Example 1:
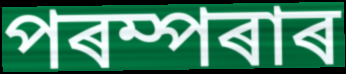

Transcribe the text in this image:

পৰম্পৰাৰ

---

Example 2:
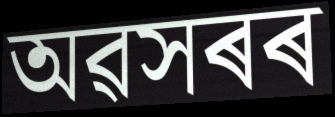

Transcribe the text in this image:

অৱসৰৰ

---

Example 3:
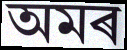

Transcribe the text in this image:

অমৰ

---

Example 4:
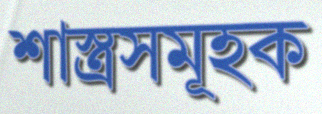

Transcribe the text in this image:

শাস্ত্ৰসমূহক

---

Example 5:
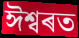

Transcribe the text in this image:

ঈশ্বৰত